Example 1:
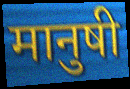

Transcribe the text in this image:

मानुषी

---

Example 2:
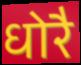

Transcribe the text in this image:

धोरै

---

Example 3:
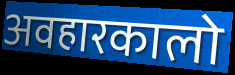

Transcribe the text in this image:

अवहारकालो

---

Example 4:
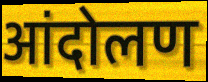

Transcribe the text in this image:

आंदोलण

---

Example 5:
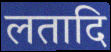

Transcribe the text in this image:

लतादि